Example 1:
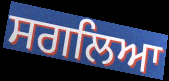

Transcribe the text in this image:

ਸਗਲਿਆ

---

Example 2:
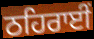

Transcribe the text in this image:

ਠਹਿਰਾਈਂ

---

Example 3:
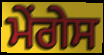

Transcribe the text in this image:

ਮੇਂਗੇਸ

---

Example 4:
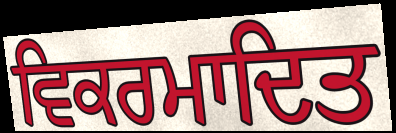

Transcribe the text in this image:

ਵਿਕਰਮਾਦਿਤ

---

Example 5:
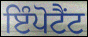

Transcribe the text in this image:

ਇੰਪੋਟੈਂਟ